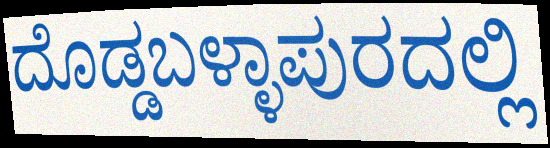
ದೊಡ್ಡಬಳ್ಳಾಪುರದಲ್ಲಿ